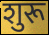
शुरू